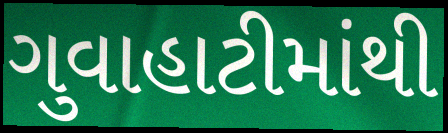
ગુવાહાટીમાંથી